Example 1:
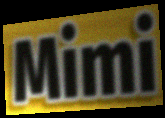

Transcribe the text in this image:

Mimi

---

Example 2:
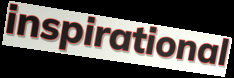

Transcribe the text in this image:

inspirational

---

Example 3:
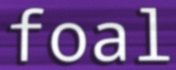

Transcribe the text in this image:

foal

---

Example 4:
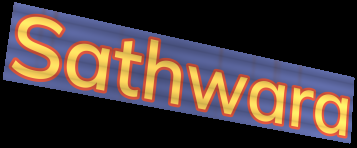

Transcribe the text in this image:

Sathwara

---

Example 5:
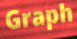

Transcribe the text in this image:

Graph